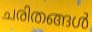
ചരിതങ്ങൾ